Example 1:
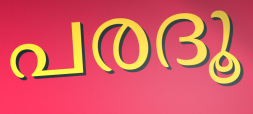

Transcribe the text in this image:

പരദൂ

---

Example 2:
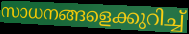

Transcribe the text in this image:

സാധനങ്ങളെക്കുറിച്ച്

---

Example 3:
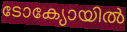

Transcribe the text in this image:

ടോക്യോയിൽ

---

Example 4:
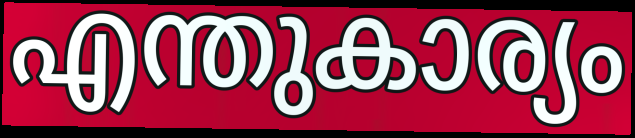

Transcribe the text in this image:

എന്തുകാര്യം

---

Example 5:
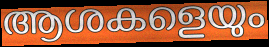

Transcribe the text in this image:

ആശകളെയും